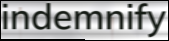
indemnify